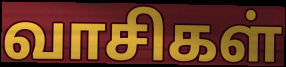
வாசிகள்